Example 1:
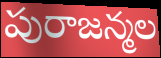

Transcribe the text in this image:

పురాజన్మల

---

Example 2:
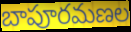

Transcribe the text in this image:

బాపూరమణల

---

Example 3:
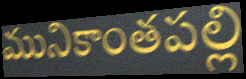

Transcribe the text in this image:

మునికాంతపల్లి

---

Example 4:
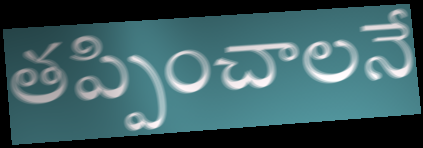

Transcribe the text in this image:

తప్పించాలనే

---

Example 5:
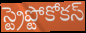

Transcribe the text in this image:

స్ట్రెప్టోకోకస్